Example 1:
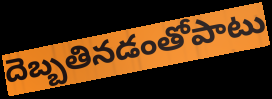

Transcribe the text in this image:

దెబ్బతినడంతోపాటు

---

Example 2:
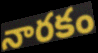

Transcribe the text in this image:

నారకం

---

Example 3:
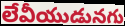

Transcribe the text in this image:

లేవీయుడునగు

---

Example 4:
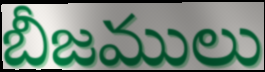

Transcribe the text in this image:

బీజములు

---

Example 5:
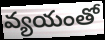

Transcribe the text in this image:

వ్యయంతో